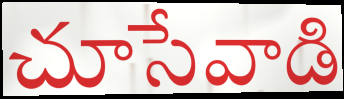
చూసేవాడి